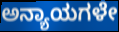
ಅನ್ಯಾಯಗಳೇ